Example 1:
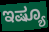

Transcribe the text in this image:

ಇಷ್ಯೂ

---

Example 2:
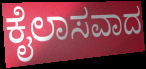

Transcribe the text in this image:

ಕೈಲಾಸವಾದ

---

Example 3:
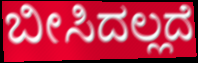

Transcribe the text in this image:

ಬೀಸಿದಲ್ಲದೆ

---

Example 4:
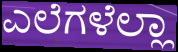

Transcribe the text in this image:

ಎಲೆಗಳೆಲ್ಲಾ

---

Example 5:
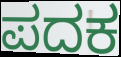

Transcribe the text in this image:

ಪದಕ